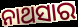
ନାଥସାର